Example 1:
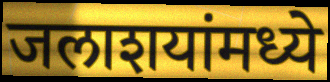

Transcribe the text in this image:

जलाशयांमध्ये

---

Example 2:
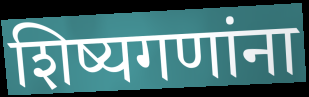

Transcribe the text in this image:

शिष्यगणांना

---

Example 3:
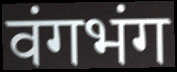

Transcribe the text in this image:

वंगभंग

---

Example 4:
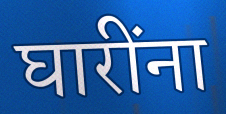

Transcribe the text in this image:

घारींना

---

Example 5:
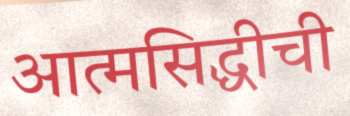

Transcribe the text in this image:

आत्मसिद्धीची